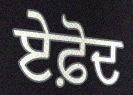
ਏਫ਼ੋਦ